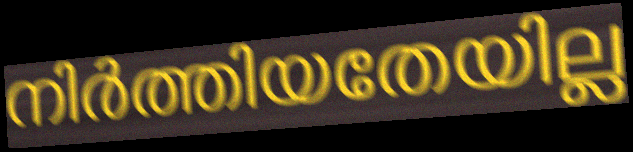
നിർത്തിയതേയില്ല